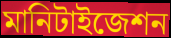
মানিটাইজেশন